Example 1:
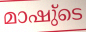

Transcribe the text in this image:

മാഷു്ടെ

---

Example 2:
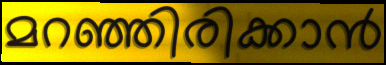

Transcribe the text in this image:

മറഞ്ഞിരിക്കാൻ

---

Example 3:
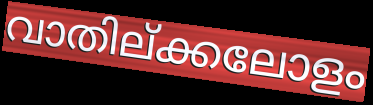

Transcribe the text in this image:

വാതില്ക്കലോളം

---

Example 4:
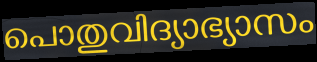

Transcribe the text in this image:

പൊതുവിദ്യാഭ്യാസം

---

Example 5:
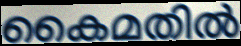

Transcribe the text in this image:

കൈമതിൽ